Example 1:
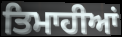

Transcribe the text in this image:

ਤਿਮਾਹੀਆਂ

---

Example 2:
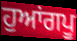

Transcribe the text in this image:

ਹੁਆਂਗਪੂ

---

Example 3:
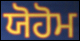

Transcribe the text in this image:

ਯੋਹੋਮ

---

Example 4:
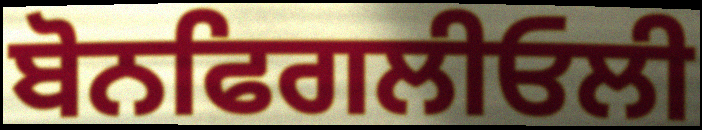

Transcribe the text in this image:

ਬੋਨਫਿਗਲੀਓਲੀ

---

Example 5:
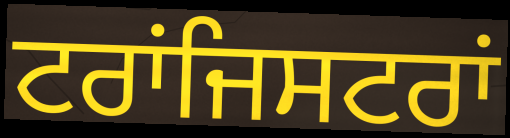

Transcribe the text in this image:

ਟਰਾਂਜਿਸਟਰਾਂ